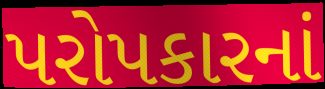
પરોપકારનાં